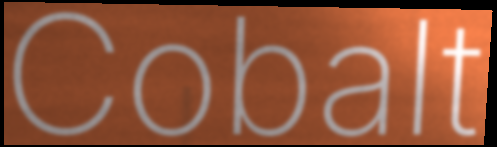
Cobalt